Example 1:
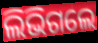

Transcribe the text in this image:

ଲିଭିଗଲେ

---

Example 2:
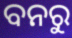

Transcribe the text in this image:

ବନରୁ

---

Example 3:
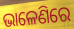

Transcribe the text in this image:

ଭାଳେଣିରେ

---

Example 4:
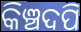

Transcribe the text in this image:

କିଞ୍ଚଦପି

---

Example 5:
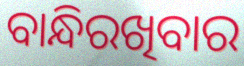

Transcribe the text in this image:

ବାନ୍ଧିରଖିବାର